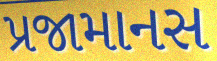
પ્રજામાનસ